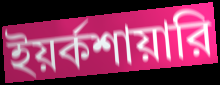
ইয়র্কশায়ারি